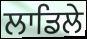
ਲਾਡਿਲੇ